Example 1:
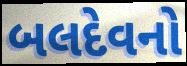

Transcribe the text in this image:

બલદેવનો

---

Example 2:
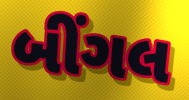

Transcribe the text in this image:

બીંગલ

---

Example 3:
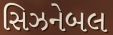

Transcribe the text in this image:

સિઝનેબલ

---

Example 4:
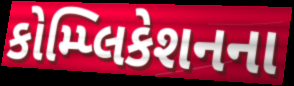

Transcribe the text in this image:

કોમ્પ્લિકેશનના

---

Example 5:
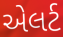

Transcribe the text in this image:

એલર્ટ